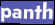
panth